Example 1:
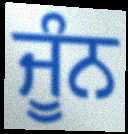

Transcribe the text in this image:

ਜੂੰਨ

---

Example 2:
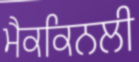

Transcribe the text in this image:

ਮੈਕਕਿਨਲੀ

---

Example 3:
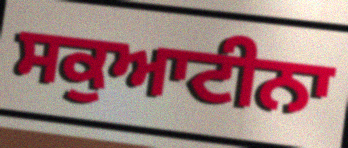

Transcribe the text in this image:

ਸਕੁਆਟੀਨਾ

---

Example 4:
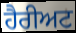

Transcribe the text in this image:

ਹੈਰੀਅਟ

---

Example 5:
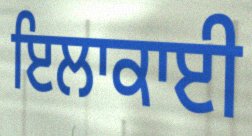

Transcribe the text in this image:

ਇਲਾਕਾਈ